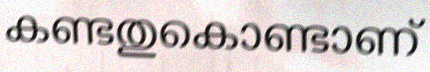
കണ്ടതുകൊണ്ടാണ്